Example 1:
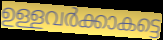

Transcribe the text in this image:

ഉള്ളവർക്കാകട്ടെ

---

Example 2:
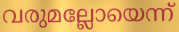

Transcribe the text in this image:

വരുമല്ലോയെന്ന്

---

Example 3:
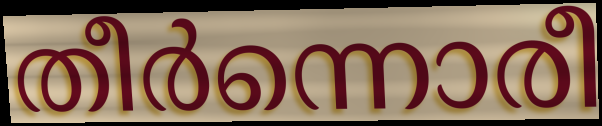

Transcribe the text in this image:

തീർന്നൊരീ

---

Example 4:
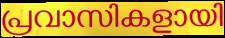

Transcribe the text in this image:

പ്രവാസികളായി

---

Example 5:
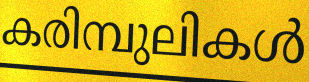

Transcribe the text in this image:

കരിമ്പുലികൾ